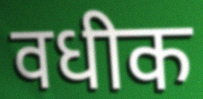
वधीक